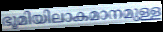
ഭൂമിയിലാകമാനമുള്ള